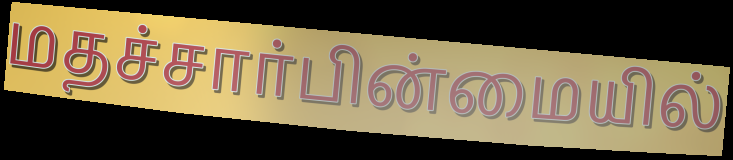
மதச்சார்பின்மையில்